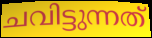
ചവിട്ടുന്നത്